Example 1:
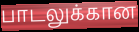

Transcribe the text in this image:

பாடலுக்கான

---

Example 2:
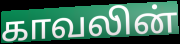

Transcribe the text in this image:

காவலின்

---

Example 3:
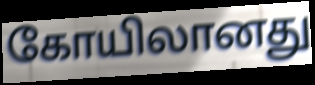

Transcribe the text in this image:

கோயிலானது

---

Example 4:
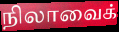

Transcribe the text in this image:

நிலாவைக்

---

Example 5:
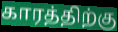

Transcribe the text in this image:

காரத்திற்கு